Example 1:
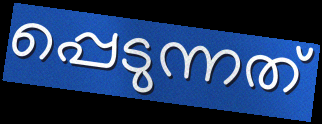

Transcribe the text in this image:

പ്പെടുന്നത്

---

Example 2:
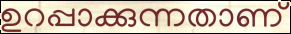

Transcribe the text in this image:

ഉറപ്പാക്കുന്നതാണ്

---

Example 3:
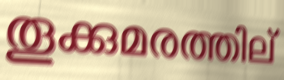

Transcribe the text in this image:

തൂക്കുമരത്തില്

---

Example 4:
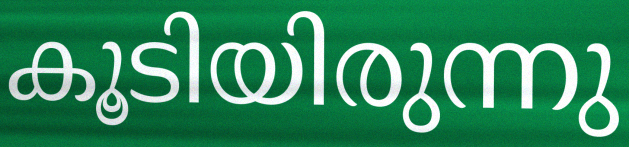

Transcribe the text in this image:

കൂടിയിരുന്നു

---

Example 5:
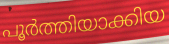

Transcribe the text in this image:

പൂർത്തിയാക്കിയ